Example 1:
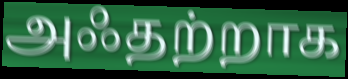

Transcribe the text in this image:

அஃதற்றாக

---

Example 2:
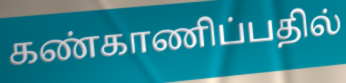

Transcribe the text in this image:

கண்காணிப்பதில்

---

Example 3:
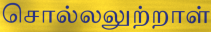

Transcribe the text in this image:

சொல்லலுற்றாள்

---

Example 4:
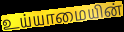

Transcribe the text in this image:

உய்யாமையின்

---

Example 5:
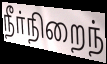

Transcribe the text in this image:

நீர்நிறைந்